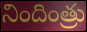
నిందింత్రు